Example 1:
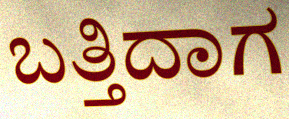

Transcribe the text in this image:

ಬತ್ತಿದಾಗ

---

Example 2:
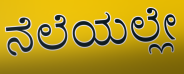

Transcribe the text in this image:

ನೆಲೆಯಲ್ಲೇ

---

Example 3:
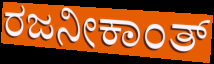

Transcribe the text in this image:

ರಜನೀಕಾಂತ್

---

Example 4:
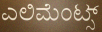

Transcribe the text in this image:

ಎಲಿಮೆಂಟ್ಸ್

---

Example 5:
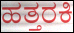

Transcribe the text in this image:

ಹತ್ತರಕಿ